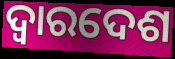
ଦ୍ଵାରଦେଶ